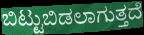
ಬಿಟ್ಟುಬಿಡಲಾಗುತ್ತದೆ